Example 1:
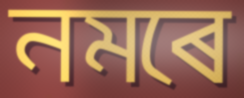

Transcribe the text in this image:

নমৰে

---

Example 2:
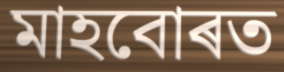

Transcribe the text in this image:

মাহবোৰত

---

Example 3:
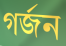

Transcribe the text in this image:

গৰ্জন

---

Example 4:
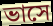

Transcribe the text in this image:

ভাসে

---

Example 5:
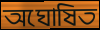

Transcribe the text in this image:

অঘোষিত